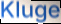
Kluge